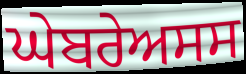
ਘੇਬਰੇਅਸਸ